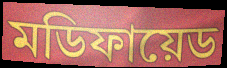
মডিফায়েড